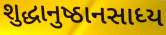
શુદ્ધાનુષ્ઠાનસાધ્ય